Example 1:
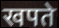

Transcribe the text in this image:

खपते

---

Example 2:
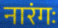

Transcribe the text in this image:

नारंगः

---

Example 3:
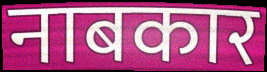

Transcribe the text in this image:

नाबकार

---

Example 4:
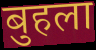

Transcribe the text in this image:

बुहला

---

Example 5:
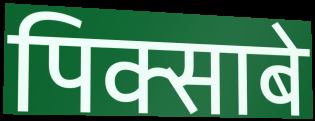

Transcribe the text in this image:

पिक्साबे